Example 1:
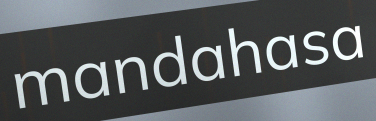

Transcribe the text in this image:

mandahasa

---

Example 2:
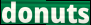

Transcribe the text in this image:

donuts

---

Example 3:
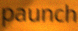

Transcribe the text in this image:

paunch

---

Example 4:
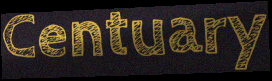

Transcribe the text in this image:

Centuary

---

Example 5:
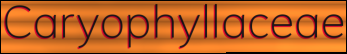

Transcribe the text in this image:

Caryophyllaceae